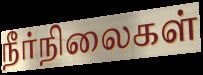
நீர்நிலைகள்